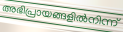
അഭിപ്രായങ്ങളിൽനിന്ന്